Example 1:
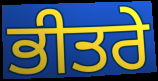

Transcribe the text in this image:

ਭੀਤਰੇ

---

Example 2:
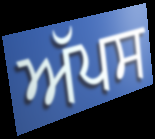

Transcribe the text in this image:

ਅੱਪਸ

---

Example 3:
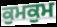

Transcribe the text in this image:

ਕੁਮਕੁਮ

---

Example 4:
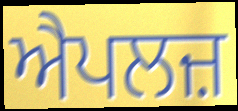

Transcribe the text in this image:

ਐਪਲਜ਼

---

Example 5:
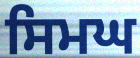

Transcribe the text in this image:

ਸਿਮਘ